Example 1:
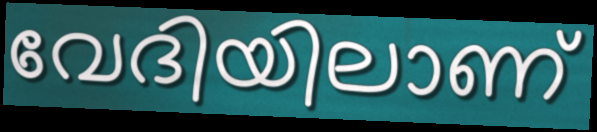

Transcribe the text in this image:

വേദിയിലാണ്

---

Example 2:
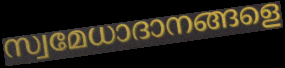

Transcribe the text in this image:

സ്വമേധാദാനങ്ങളെ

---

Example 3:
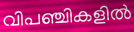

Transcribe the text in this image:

വിപഞ്ചികളിൽ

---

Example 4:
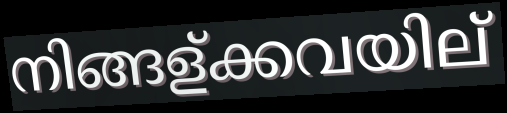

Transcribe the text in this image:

നിങ്ങള്ക്കവയില്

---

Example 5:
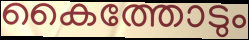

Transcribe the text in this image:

കൈത്തോടും